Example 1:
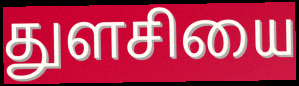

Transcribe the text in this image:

துளசியை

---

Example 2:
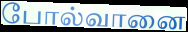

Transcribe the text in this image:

போல்வானை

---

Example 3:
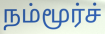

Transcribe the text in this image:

நம்மூர்ச்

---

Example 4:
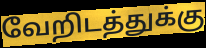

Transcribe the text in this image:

வேறிடத்துக்கு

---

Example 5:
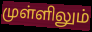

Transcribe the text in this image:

முள்ளிலும்